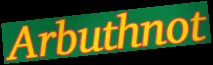
Arbuthnot